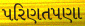
પરિણતપણા